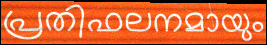
പ്രതിഫലനമായും